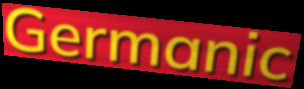
Germanic